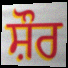
ਸ਼ੌਰ